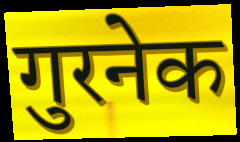
गुरनेक